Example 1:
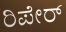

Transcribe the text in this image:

ರಿಪೇರ್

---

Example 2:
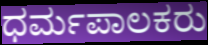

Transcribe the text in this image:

ಧರ್ಮಪಾಲಕರು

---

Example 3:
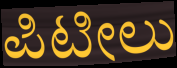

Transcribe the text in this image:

ಪಿಟೀಲು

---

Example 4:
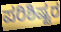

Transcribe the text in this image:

ಪರಿಶಿಷ್ಟರ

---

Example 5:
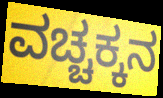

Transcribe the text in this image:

ವಚ್ಚಕ್ಕನ